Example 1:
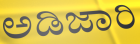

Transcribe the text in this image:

ಅಡಿಜಾರಿ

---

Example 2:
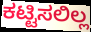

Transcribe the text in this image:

ಕಟ್ಟಿಸಲಿಲ್ಲ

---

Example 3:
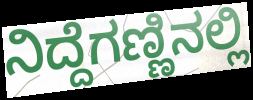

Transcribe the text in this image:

ನಿದ್ದೆಗಣ್ಣಿನಲ್ಲಿ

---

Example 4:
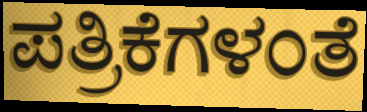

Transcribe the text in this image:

ಪತ್ರಿಕೆಗಳಂತೆ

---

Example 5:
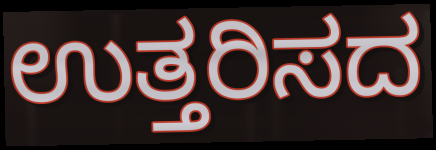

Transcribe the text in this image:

ಉತ್ತರಿಸದ